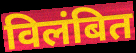
विलंबित